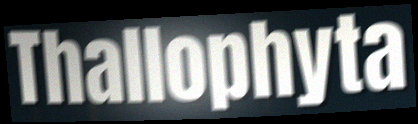
Thallophyta